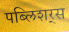
पब्लिशर्स